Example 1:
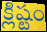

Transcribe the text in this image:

క్లిష్టం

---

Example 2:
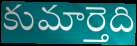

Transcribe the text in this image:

కుమార్తెది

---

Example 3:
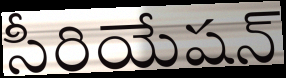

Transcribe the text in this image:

సీరియేషన్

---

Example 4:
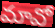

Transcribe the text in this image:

మావో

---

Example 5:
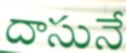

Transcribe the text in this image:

దాసునే